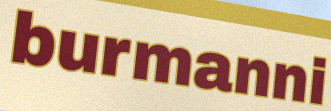
burmanni